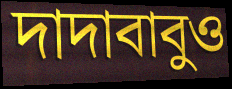
দাদাবাবুও